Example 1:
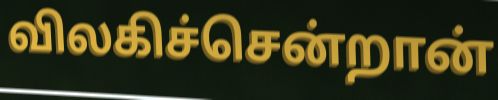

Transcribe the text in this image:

விலகிச்சென்றான்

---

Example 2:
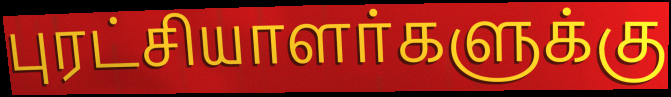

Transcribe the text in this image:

புரட்சியாளர்களுக்கு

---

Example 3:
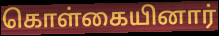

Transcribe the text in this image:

கொள்கையினார்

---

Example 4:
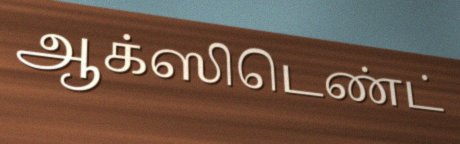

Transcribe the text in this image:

ஆக்ஸிடெண்ட்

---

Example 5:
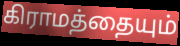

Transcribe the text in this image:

கிராமத்தையும்